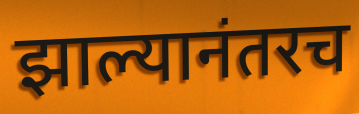
झाल्यानंतरच